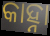
କାହ୍ନା